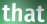
that